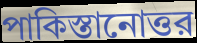
পাকিস্তানোত্তর